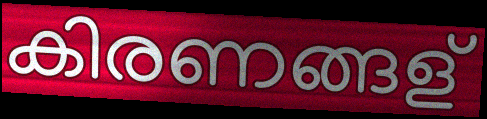
കിരണങ്ങള്